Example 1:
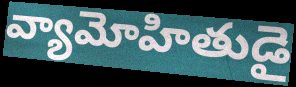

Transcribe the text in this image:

వ్యామోహితుడై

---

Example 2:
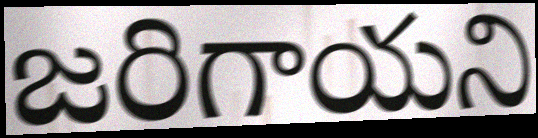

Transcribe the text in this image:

జరిగాయని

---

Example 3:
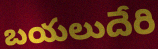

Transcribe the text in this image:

బయలుదేరి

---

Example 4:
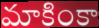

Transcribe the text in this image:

మాకింకా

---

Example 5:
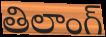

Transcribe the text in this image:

తిలాంగ్